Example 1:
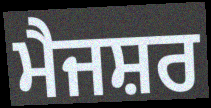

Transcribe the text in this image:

ਮੈਜਸ਼ਰ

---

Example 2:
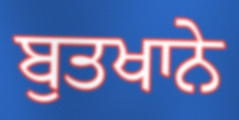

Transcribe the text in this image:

ਬੁਤਖਾਨੇ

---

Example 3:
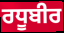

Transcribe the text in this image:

ਰਧੂਬੀਰ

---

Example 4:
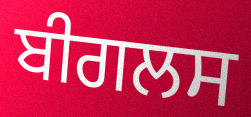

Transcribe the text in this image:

ਬੀਗਲਸ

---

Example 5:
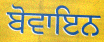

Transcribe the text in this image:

ਬੋਵਾਇਨ